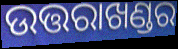
ଉତ୍ତରାଖଣ୍ଡର